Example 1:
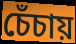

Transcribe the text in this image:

চেঁচায়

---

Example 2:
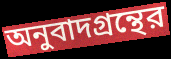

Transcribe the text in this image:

অনুবাদগ্রন্থের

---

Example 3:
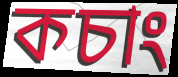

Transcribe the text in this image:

কচাং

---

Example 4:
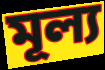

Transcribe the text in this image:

মূল্য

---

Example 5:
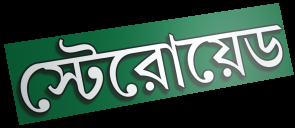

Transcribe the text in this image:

স্টেরোয়েড